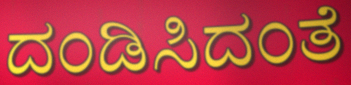
ದಂಡಿಸಿದಂತೆ